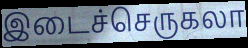
இடைச்செருகலா